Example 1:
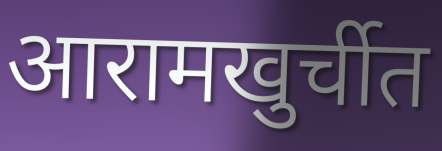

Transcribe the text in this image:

आरामखुर्चीत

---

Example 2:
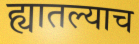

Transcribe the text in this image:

ह्यातल्याच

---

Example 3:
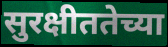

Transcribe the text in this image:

सुरक्षीततेच्या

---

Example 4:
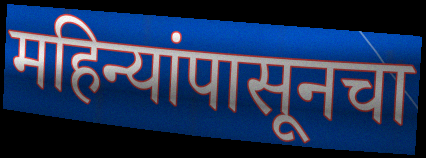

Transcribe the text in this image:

महिन्यांपासूनचा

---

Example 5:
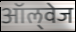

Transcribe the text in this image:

ऑल्वेज